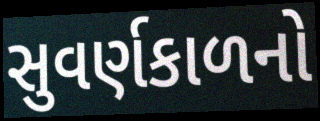
સુવર્ણકાળનો